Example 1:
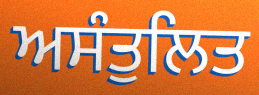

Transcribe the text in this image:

ਅਸੰਤੁਲਿਤ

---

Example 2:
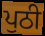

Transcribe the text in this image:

ਪੁਠੀ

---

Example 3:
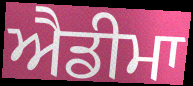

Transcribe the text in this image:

ਐਡੀਮਾ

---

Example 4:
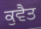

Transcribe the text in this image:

ਕੁਵੈਤ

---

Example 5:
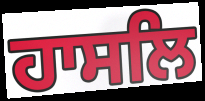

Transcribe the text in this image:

ਹਾਸਲਿ